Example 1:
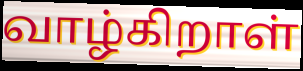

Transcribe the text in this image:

வாழ்கிறாள்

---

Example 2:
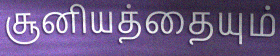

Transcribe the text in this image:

சூனியத்தையும்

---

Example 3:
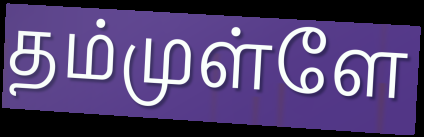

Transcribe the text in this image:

தம்முள்ளே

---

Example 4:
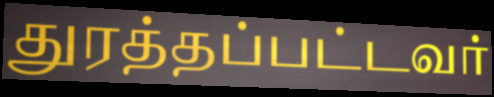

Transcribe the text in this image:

துரத்தப்பட்டவர்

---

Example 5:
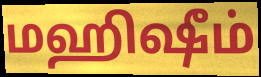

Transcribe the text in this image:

மஹிஷீம்